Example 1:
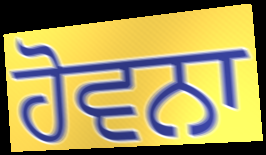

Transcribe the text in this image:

ਹੋਵਨਾ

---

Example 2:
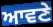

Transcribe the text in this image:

ਆਵਣੇ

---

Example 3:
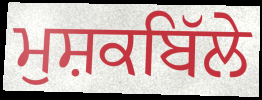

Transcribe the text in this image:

ਮੁਸ਼ਕਬਿੱਲੇ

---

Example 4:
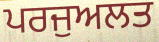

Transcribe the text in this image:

ਪਰਜੁਅਲਤ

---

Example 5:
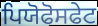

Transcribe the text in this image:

ਪਿਯੋਫੋਸਫੇਟ